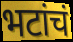
भटांचं